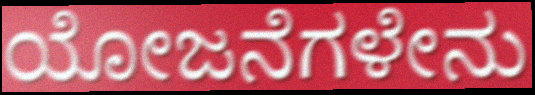
ಯೋಜನೆಗಳೇನು